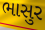
ભાસુર